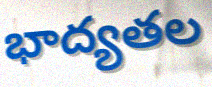
భాద్యతల